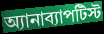
অ্যানাব্যাপটিস্ট